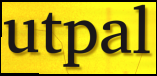
utpal